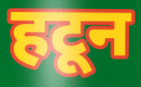
हटून